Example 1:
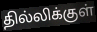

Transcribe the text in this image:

தில்லிக்குள்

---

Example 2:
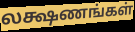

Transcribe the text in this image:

லக்ஷணங்கள்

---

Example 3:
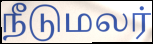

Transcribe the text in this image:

நீடுமலர்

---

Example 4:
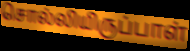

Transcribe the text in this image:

சொல்லியிருப்பாள்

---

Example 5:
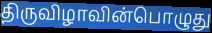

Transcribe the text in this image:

திருவிழாவின்பொழுது